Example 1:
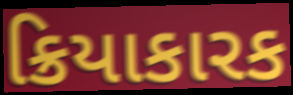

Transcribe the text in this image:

ક્રિયાકારક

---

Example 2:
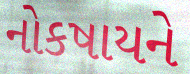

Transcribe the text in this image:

નોકષાયને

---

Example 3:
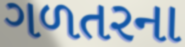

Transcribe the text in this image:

ગળતરના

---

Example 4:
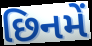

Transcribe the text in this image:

છિનમેં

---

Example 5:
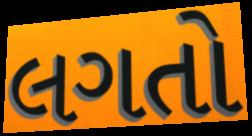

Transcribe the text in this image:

લગતો